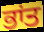
ਭਾਂਤ